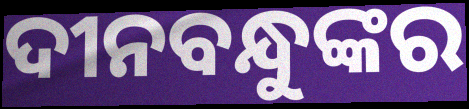
ଦୀନବନ୍ଧୁଙ୍କର